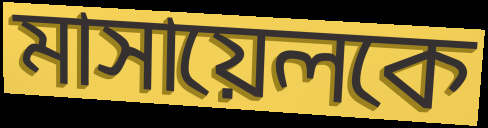
মাসায়েলকে